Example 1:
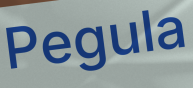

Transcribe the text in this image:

Pegula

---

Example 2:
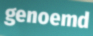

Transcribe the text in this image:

genoemd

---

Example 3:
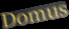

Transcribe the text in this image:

Domus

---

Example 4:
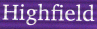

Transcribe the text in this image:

Highfield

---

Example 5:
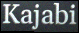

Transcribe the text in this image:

Kajabi